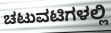
ಚಟುವಟಿಗಳಲ್ಲಿ